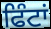
ਫਿੰਟਾਂ